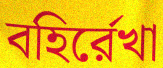
বহির্রেখা